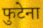
फुटेना